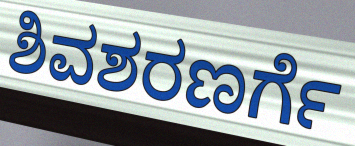
ಶಿವಶರಣರ್ಗೆ